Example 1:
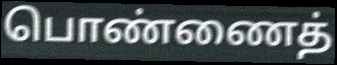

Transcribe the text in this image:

பொண்ணைத்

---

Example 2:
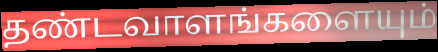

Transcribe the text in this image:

தண்டவாளங்களையும்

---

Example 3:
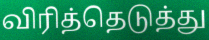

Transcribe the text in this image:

விரித்தெடுத்து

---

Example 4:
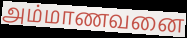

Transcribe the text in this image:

அம்மாணவனை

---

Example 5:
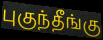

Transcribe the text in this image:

புகுந்தீங்கு